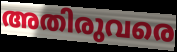
അതിരുവരെ